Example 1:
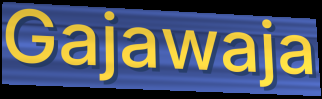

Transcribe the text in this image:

Gajawaja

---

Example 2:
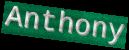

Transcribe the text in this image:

Anthony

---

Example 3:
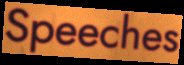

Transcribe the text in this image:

Speeches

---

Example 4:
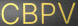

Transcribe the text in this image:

CBPV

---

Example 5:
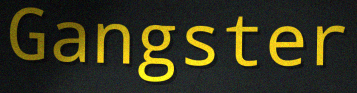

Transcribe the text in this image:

Gangster